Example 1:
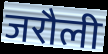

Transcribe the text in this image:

जरौली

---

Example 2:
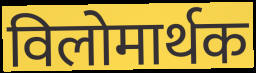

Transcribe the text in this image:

विलोमार्थक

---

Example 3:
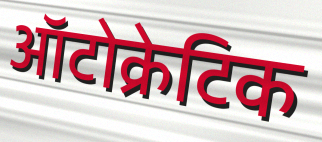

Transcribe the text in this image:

ऑटोक्रेटिक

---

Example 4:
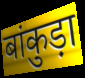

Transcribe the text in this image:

बांकुड़ा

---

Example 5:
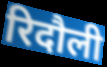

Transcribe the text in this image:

रिदौली